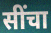
सींचा